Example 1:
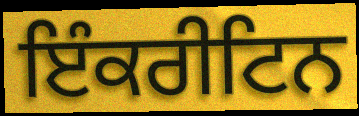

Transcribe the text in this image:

ਇੰਕਰੀਟਿਨ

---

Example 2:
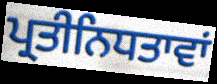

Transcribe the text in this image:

ਪ੍ਰਤੀਨਿਧਤਾਵਾਂ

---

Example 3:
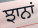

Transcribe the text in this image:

ਝਾਨਾਂ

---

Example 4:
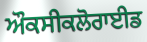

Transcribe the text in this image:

ਔਕਸੀਕਲੋਰਾਈਡ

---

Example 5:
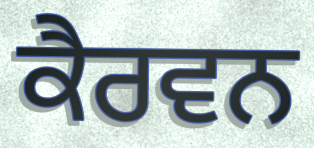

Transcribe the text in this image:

ਕੈਰਵਨ